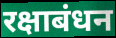
रक्षाबंधन